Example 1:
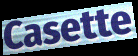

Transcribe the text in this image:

Casette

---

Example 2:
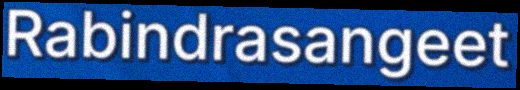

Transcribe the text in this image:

Rabindrasangeet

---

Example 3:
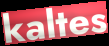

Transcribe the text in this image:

kaltes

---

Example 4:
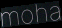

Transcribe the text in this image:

moha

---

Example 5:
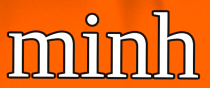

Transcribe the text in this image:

minh